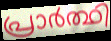
പ്രാർത്ഥി